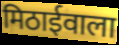
मिठाईवाला